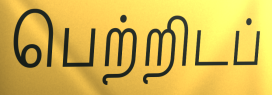
பெற்றிடப்